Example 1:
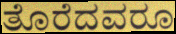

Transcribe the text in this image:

ತೊರೆದವರೂ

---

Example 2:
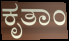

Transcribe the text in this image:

ಕೃತಾಂ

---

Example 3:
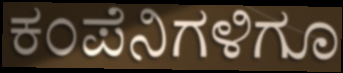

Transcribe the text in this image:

ಕಂಪೆನಿಗಳಿಗೂ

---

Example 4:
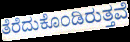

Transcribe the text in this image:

ತೆರೆದುಕೊಂಡಿರುತ್ತವೆ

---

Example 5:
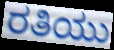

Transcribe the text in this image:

ರತಿಯು